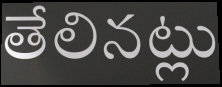
తేలినట్లు